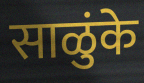
साळुंके